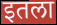
इतला